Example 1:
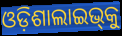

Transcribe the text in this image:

ଓଡ଼ିଶାଲାଇଭ୍‌କୁ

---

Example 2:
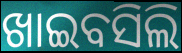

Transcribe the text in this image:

ଖାଇବସିଲି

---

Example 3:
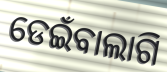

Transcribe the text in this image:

ଡେଇଁବାଲାଗି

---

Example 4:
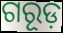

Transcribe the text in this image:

ଗରୂଡ଼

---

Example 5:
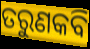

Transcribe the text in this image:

ତରୁଣକବି